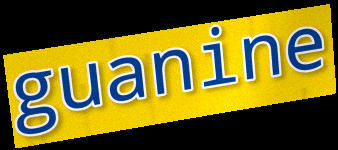
guanine